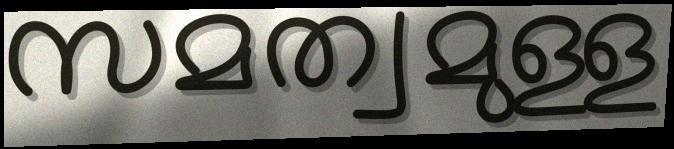
സമത്വമുള്ള